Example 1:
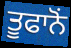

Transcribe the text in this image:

ਤੂਫਾਨੋਂ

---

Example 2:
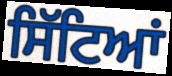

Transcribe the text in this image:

ਸਿੱਟਿਆਂ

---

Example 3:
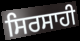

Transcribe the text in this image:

ਸਿਰਸਾਹੀ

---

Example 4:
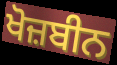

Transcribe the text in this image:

ਖੋਜ਼ਬੀਨ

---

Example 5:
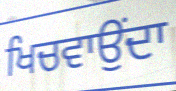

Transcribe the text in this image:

ਖਿਚਵਾਉਂਦਾ